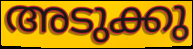
അടുക്കു